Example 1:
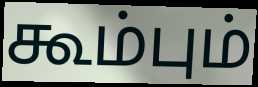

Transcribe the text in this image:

கூம்பும்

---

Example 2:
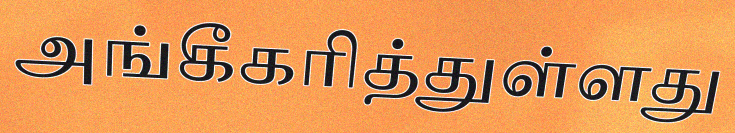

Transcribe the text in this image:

அங்கீகரித்துள்ளது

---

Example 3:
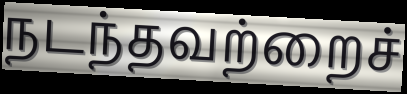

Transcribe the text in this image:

நடந்தவற்றைச்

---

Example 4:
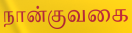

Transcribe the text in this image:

நான்குவகை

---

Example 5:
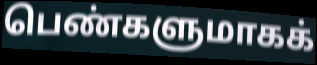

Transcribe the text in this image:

பெண்களுமாகக்